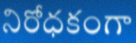
నిరోధకంగా